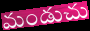
మండుచు